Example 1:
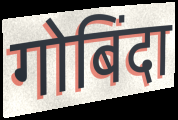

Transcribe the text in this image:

गोबिंदा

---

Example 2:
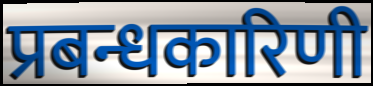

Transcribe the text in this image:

प्रबन्धकारिणी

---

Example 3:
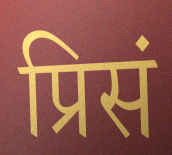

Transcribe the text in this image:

प्रिसं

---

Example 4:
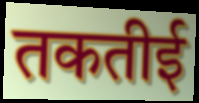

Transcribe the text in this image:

तकतीई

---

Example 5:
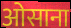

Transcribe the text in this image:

ओसाना